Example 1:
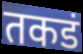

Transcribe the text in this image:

तकडं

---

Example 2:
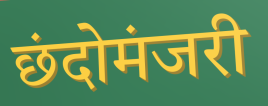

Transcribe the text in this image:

छंदोमंजरी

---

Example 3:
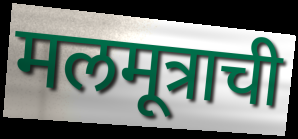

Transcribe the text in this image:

मलमूत्राची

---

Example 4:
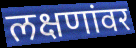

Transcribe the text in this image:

लक्षणांवर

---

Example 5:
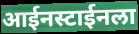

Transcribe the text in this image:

आईनस्टाईनला